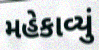
મહેકાવ્યું